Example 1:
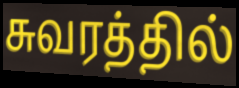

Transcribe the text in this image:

சுவரத்தில்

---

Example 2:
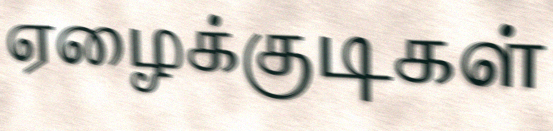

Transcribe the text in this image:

ஏழைக்குடிகள்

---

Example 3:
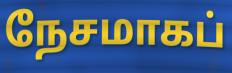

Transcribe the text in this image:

நேசமாகப்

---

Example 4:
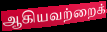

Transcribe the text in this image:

ஆகியவற்றைக்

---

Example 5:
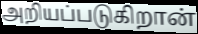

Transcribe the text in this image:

அறியப்படுகிறான்